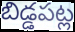
బిడ్డపట్ల